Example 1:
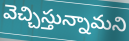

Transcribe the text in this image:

వెచ్చిస్తున్నామని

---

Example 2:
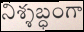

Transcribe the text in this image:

నిశ్శబ్ధంగా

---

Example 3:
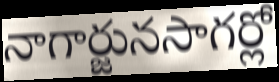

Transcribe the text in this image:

నాగార్జునసాగర్లో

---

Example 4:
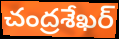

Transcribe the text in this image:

చంద్రశేఖర్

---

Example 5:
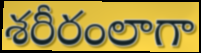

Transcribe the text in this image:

శరీరంలాగా